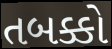
તબક્કો